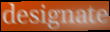
designate